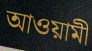
আওয়ামী